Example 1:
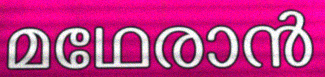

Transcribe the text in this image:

മഥേരാൻ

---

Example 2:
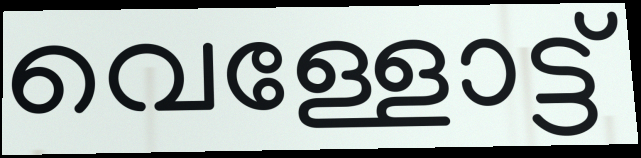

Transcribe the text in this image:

വെള്ളോട്ട്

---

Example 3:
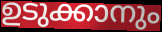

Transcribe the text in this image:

ഉടുക്കാനും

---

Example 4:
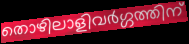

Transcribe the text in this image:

തൊഴിലാളിവർഗ്ഗത്തിന്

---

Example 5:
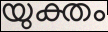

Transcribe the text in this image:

യുക്തം